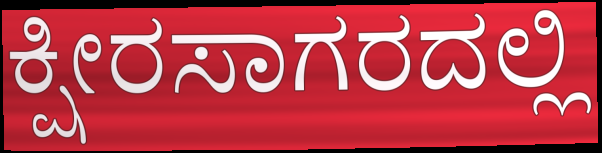
ಕ್ಷೀರಸಾಗರದಲ್ಲಿ